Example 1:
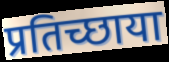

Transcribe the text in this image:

प्रतिच्छाया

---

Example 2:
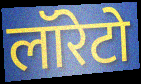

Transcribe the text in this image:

लॉरेटो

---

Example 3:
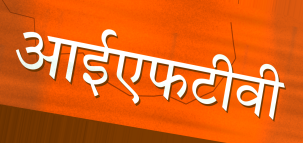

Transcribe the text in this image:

आईएफटीवी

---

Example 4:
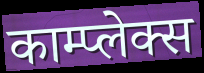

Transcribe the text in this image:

काम्प्लेक्स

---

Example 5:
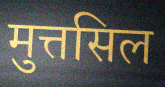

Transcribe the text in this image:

मुत्तसिल